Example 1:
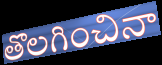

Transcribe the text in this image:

తొలగించినా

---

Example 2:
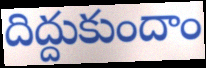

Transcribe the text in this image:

దిద్దుకుందాం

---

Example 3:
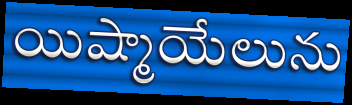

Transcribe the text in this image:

యిష్మాయేలును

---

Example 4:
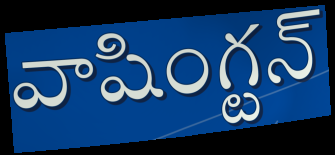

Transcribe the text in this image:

వాషింగ్టన్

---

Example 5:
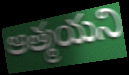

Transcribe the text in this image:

ఆత్మయని